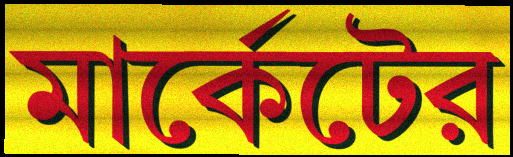
মার্কেটের